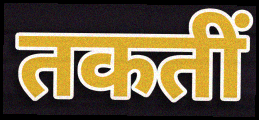
तकतीं